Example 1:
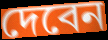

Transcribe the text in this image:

দেবেন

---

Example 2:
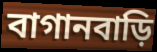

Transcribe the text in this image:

বাগানবাড়ি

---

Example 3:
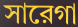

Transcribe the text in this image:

সারেগা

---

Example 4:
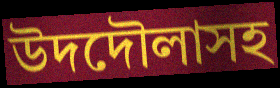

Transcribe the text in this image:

উদদৌলাসহ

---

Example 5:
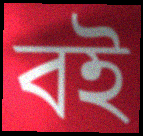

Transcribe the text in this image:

বই